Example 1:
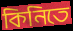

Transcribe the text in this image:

কিনিতে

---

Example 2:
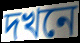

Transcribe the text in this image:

দখনে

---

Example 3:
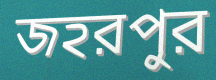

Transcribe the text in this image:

জহরপুর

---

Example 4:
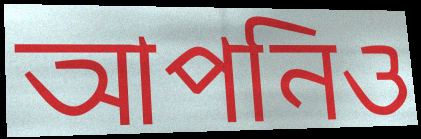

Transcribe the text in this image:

আপনিও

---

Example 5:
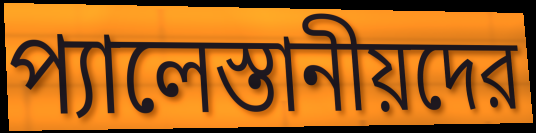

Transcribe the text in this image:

প্যালেস্তানীয়দের